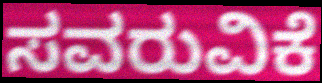
ಸವರುವಿಕೆ